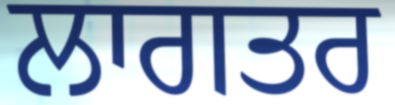
ਲਾਗਤਰ